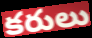
కరులు